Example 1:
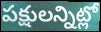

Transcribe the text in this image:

పక్షులన్నిట్లో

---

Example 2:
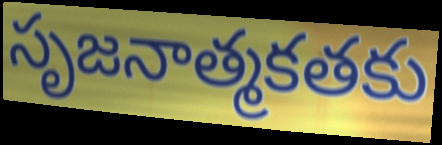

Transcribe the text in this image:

సృజనాత్మకతకు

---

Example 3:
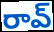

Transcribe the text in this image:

రావ్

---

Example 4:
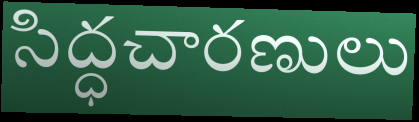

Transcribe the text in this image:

సిద్ధచారణులు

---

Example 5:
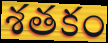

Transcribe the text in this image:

శతకం